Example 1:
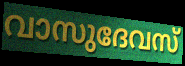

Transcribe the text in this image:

വാസുദേവസ്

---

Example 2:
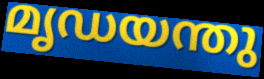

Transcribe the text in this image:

മൃഡയന്തു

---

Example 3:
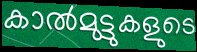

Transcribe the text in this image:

കാൽമുട്ടുകളുടെ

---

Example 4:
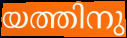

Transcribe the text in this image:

യത്തിനു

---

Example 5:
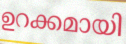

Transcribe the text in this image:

ഉറക്കമായി